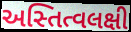
અસ્તિત્વલક્ષી